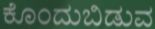
ಕೊಂದುಬಿಡುವ